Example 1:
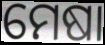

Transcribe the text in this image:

ମେଷା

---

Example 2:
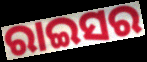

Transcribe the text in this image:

ରାଇସର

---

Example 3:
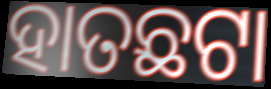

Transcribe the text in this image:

ହାତଛଟା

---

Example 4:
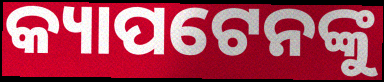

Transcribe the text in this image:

କ୍ୟାପଟେନଙ୍କୁ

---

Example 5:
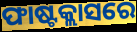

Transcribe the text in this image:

ଫାଷ୍ଟକ୍ଲାସରେ